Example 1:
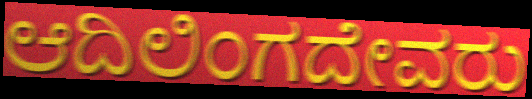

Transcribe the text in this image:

ಆದಿಲಿಂಗದೇವರು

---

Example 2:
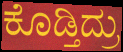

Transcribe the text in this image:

ಕೊಡ್ತಿದ್ರು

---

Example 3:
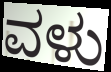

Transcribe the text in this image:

ವಳು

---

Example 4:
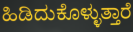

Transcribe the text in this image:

ಹಿಡಿದುಕೊಳ್ಳುತ್ತಾರೆ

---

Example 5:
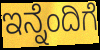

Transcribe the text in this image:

ಇನ್ನೆಂದಿಗೆ